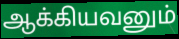
ஆக்கியவனும்